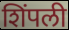
शिंपली